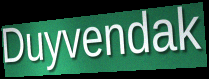
Duyvendak